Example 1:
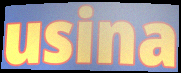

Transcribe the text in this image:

usina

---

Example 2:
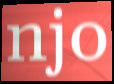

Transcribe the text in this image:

njo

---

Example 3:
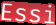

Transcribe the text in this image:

Essi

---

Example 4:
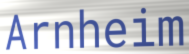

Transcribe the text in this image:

Arnheim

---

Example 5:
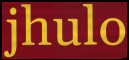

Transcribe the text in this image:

jhulo